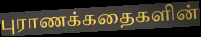
புராணக்கதைகளின்